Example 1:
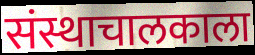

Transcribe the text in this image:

संस्थाचालकाला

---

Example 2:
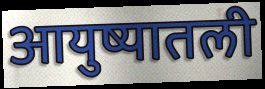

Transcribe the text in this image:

आयुष्यातली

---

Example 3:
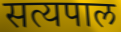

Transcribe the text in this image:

सत्यपाल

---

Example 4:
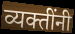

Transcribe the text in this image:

व्यक्तींनी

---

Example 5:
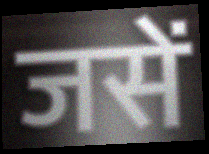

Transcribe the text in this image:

जसें